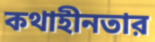
কথাহীনতার